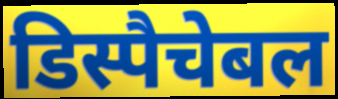
डिस्पैचेबल